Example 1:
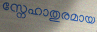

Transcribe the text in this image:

സ്നേഹാതുരമായ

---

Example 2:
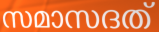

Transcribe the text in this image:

സമാസദത്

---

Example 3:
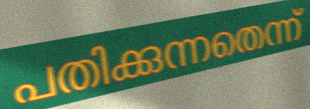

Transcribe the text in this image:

പതിക്കുന്നതെന്ന്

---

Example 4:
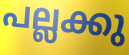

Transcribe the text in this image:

പല്ലക്കു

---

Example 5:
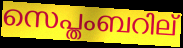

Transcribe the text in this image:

സെപ്തംബറില്